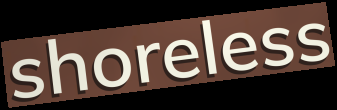
shoreless